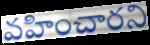
వహించారని